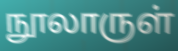
நூலாருள்